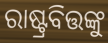
ରାଷ୍ଟ୍ରବିତ୍ତଙ୍କୁ